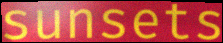
sunsets